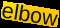
elbow